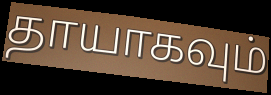
தாயாகவும்